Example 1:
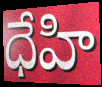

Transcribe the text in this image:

ధేహి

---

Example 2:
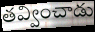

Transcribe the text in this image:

తవ్వించాడు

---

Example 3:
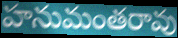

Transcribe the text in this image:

హనుమంతరావు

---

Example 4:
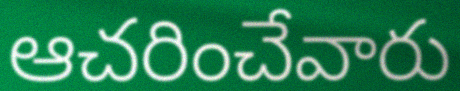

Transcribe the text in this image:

ఆచరించేవారు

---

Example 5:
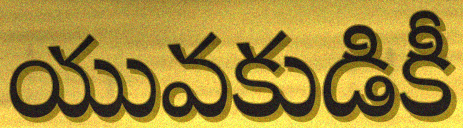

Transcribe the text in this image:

యువకుడికీ